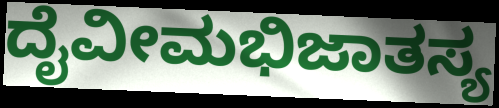
ದೈವೀಮಭಿಜಾತಸ್ಯ